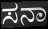
ಸನಾ